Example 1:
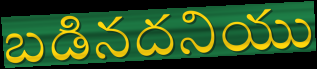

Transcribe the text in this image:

బడినదనియు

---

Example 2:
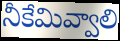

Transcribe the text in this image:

నీకేమివ్వాలి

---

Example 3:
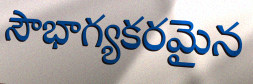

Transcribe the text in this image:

సౌభాగ్యకరమైన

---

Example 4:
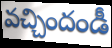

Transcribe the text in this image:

వచ్చిందండీ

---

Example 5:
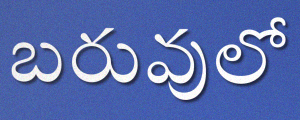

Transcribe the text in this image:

బరువులో